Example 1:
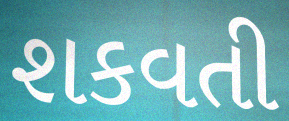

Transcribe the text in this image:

શકવતી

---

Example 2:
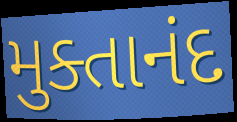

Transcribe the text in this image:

મુક્તાનંદ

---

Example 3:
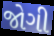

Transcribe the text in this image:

જોગી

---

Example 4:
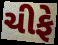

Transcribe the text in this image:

ચીફે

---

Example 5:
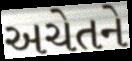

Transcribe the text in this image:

અચેતને